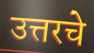
उत्तरचे